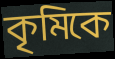
কৃমিকে